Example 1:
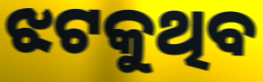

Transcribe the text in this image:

ଝଟକୁଥିବ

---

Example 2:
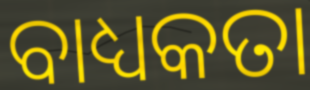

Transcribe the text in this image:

ବାଧ୍ୟକତା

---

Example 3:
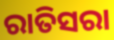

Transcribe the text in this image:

ରାତିସରା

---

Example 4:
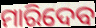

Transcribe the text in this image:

ମାରିଦେବ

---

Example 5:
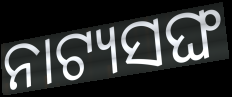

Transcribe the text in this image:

ନାଟ୍ୟସଙ୍ଘ